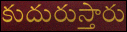
కుదురుస్తారు